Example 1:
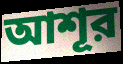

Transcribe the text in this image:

আশূর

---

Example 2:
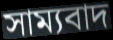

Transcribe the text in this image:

সাম্যবাদ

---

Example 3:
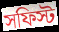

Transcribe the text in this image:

সফিস্ট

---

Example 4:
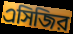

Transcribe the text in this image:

এসিজির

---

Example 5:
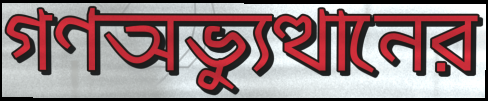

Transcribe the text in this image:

গণঅভ্যুত্থানের